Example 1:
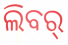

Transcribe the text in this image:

ଲିବର୍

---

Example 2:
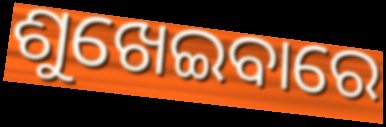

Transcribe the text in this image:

ଶୁଖେଇବାରେ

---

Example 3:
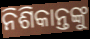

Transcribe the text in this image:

ନିଶିକାନ୍ତଙ୍କୁ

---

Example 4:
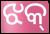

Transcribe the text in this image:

ଝକ୍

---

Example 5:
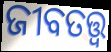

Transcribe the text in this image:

ଜୀବତତ୍ତ୍ୱ